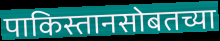
पाकिस्तानसोबतच्या